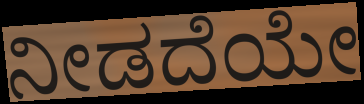
ನೀಡದೆಯೇ